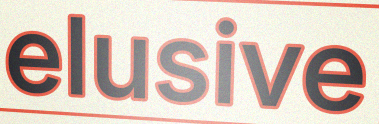
elusive